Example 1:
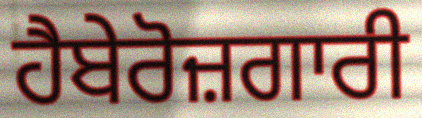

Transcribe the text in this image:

ਹੈਬੇਰੋਜ਼ਗਾਰੀ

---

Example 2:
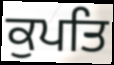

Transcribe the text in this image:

ਕੁਪਤਿ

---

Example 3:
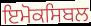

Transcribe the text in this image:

ਇਮੋਕਸਿਬਲ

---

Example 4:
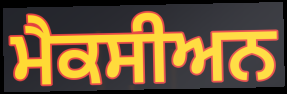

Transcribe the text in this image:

ਮੈਕਸੀਅਨ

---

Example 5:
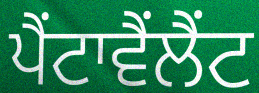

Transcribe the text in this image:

ਪੈਂਟਾਵੈਂਲੈਂਟ